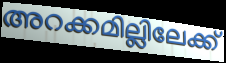
അറക്കമില്ലിലേക്ക്